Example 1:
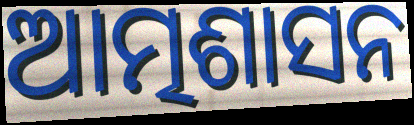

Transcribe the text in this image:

ଆତ୍ମଶାସନ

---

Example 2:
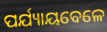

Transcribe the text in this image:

ପର୍ଯ୍ୟାୟବେଳେ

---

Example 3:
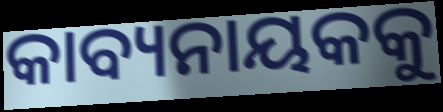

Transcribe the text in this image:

କାବ୍ୟନାୟକକୁ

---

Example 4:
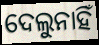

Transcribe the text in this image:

ଦେଲୁନାହିଁ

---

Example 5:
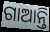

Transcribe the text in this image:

ଗାଆନ୍ତି